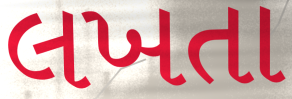
લખતા